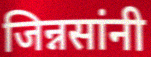
जिन्नसांनी